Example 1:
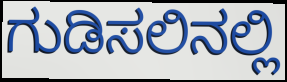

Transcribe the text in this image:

ಗುಡಿಸಲಿನಲ್ಲಿ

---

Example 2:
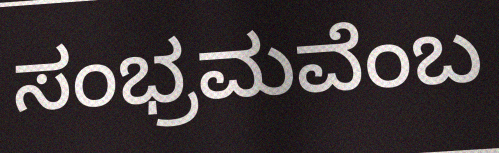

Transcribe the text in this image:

ಸಂಭ್ರಮವೆಂಬ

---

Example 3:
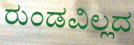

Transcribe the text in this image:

ರುಂಡವಿಲ್ಲದ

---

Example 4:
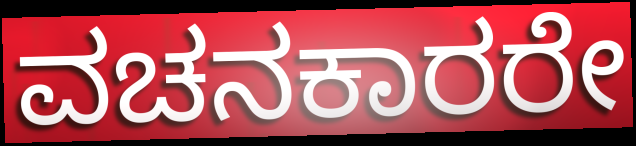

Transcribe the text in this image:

ವಚನಕಾರರೇ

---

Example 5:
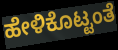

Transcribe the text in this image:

ಹೇಳಿಕೊಟ್ಟಂತೆ